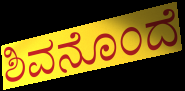
ಶಿವನೊಂದೆ